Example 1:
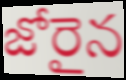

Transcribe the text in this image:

జోరైన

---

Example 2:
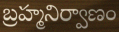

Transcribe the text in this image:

బ్రహ్మనిర్వాణం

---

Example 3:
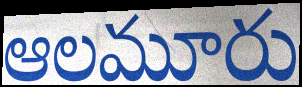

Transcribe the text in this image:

ఆలమూరు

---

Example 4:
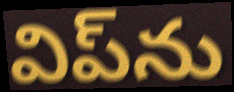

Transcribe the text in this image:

విప్‌ను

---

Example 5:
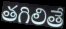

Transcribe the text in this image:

తగిలితే